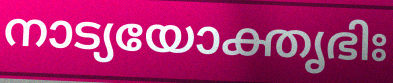
നാട്യയോക്തൃഭിഃ